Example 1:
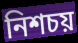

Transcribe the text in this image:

নিশচয়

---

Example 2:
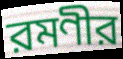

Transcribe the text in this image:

রমণীর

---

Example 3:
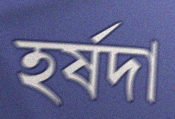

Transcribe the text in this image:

হর্ষদা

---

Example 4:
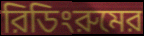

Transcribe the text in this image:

রিডিংরুমের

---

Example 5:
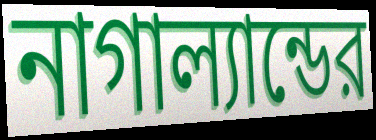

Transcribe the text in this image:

নাগাল্যান্ডের